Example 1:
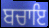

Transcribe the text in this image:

ਬਚਾਇ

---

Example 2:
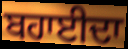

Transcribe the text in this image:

ਬਹਾਈਦਾ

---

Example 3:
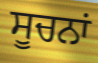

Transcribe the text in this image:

ਸੂਚਨਾਂ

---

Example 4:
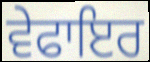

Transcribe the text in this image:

ਵੇਫਾਇਰ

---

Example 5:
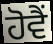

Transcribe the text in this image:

ਹੋਵੈਂ